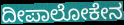
ದೀಪಾಲೋಕೇನ